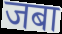
जबा